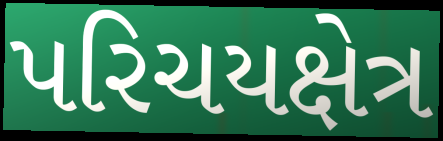
પરિચયક્ષેત્ર